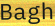
Bagh